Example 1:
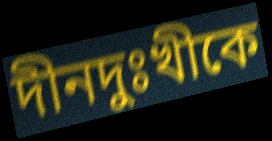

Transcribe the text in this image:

দীনদুঃখীকে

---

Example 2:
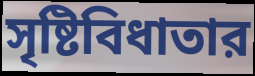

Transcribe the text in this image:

সৃষ্টিবিধাতার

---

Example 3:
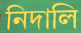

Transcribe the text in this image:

নিদালি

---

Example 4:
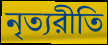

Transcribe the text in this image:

নৃত্যরীতি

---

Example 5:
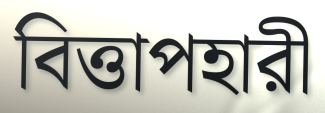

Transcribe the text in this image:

বিত্তাপহারী